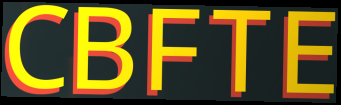
CBFTE